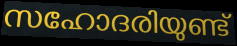
സഹോദരിയുണ്ട്